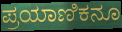
ಪ್ರಯಾಣಿಕನೂ